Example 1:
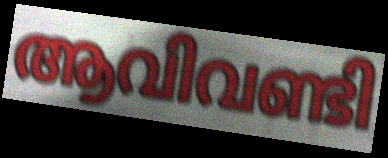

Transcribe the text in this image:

ആവിവണ്ടി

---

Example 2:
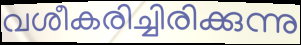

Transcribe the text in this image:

വശീകരിച്ചിരിക്കുന്നു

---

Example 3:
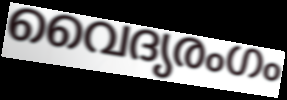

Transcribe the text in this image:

വൈദ്യരംഗം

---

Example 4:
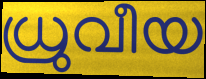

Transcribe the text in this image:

ധ്രുവീയ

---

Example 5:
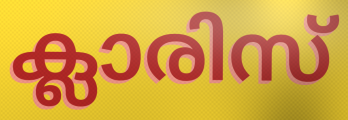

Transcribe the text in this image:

ക്ലാരിസ്